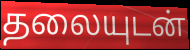
தலையுடன்